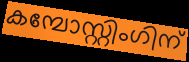
കമ്പോസ്റ്റിംഗിന്